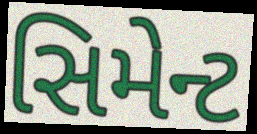
સિમેન્ટ